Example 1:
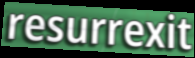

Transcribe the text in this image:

resurrexit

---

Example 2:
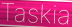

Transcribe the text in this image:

Taskia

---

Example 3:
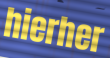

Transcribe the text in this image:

hierher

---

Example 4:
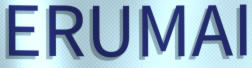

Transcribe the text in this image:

ERUMAI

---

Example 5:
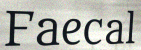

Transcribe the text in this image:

Faecal